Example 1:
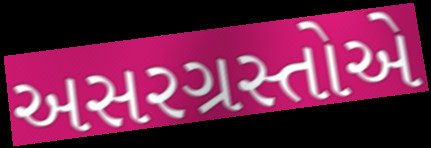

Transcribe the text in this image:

અસરગ્રસ્તોએ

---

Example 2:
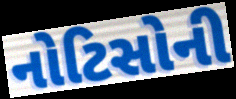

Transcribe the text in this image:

નોટિસોની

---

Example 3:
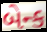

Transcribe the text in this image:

બેન્ક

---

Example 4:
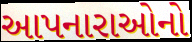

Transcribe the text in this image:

આપનારાઓનો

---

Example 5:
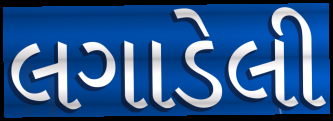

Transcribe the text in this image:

લગાડેલી